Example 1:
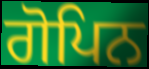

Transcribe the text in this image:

ਗੋਪਿਨ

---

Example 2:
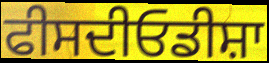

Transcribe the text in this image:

ਫੀਸਦੀਓਡੀਸ਼ਾ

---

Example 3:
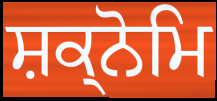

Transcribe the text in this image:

ਸ਼ਕ੍ਨੋਮਿ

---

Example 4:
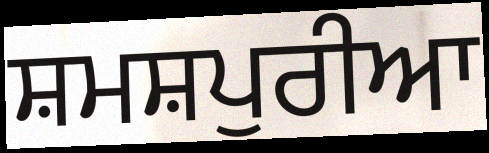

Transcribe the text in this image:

ਸ਼ਮਸ਼ਪੁਰੀਆ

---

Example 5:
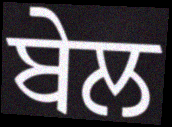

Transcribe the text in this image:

ਬੇਲ